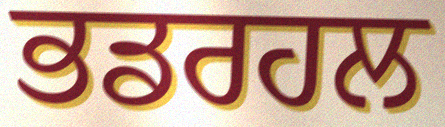
ਭਡਰਹਲ